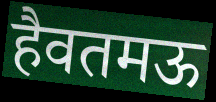
हैवतमऊ